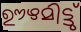
ഊഴമിട്ടു്